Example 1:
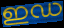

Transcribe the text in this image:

ഇഡ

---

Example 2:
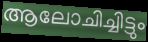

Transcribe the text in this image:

ആലോചിച്ചിട്ടും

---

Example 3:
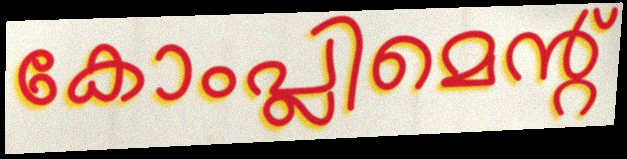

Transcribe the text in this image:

കോംപ്ലിമെന്റ്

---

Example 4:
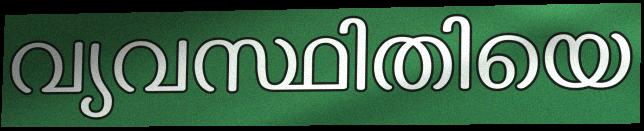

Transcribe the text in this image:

വ്യവസ്ഥിതിയെ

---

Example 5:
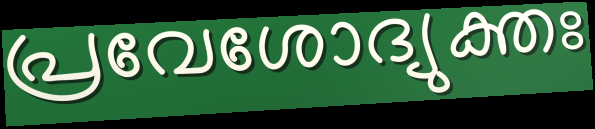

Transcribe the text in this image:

പ്രവേശോദ്യുക്തഃ